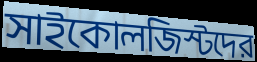
সাইকোলজিস্টদের